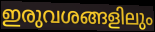
ഇരുവശങ്ങളിലും